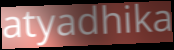
atyadhika